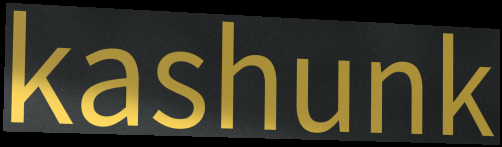
kashunk